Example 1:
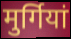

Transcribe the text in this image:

मुर्गियां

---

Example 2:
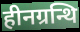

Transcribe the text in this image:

हीनग्रन्थि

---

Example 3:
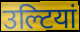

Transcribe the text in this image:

उल्‍टियां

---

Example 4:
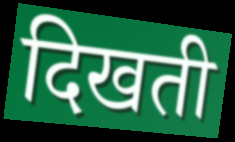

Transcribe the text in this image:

दिखती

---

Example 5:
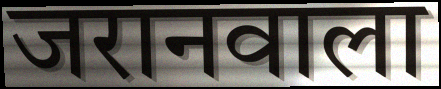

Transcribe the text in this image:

जरानवाला